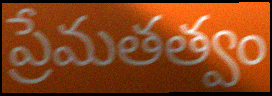
ప్రేమతత్వం